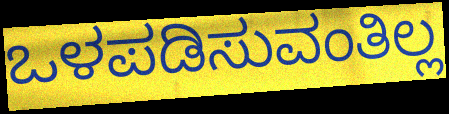
ಒಳಪಡಿಸುವಂತಿಲ್ಲ